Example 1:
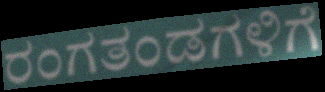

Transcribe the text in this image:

ರಂಗತಂಡಗಳಿಗೆ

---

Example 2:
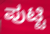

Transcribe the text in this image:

ಪುಟ್ಟಿ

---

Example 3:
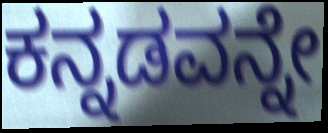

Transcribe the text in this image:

ಕನ್ನಡವನ್ನೇ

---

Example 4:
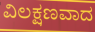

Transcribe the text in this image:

ವಿಲಕ್ಷಣವಾದ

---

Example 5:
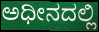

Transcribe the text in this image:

ಅಧೀನದಲ್ಲಿ